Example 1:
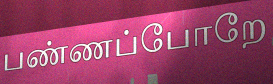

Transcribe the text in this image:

பண்ணப்போறே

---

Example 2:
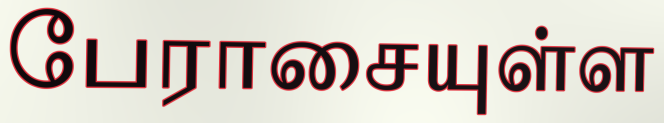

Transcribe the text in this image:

பேராசையுள்ள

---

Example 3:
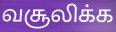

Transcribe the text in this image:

வசூலிக்க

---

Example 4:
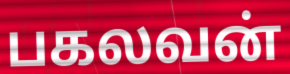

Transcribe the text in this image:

பகலவன்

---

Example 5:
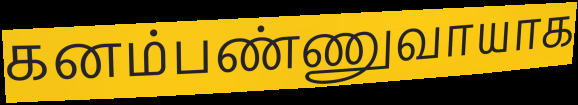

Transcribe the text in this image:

கனம்பண்ணுவாயாக